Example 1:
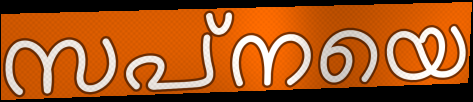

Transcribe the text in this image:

സപ്‌നയെ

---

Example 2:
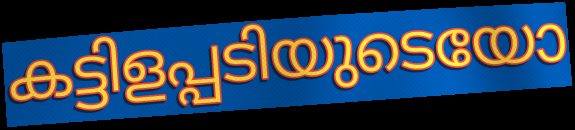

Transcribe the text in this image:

കട്ടിളപ്പടിയുടെയോ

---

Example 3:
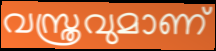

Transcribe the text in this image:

വസ്ത്രവുമാണ്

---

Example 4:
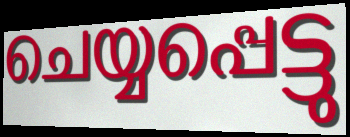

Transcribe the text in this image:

ചെയ്യപ്പെട്ടു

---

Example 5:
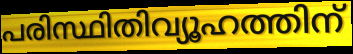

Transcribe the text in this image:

പരിസ്ഥിതിവ്യൂഹത്തിന്